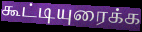
கூட்டியுரைக்க